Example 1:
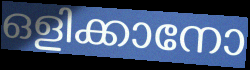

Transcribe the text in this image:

ഒളിക്കാനോ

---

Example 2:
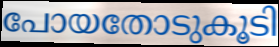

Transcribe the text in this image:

പോയതോടുകൂടി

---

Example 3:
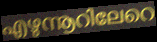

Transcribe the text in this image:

എഴുന്നൂറിലേറെ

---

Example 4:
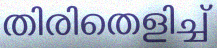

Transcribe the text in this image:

തിരിതെളിച്ച്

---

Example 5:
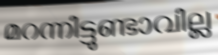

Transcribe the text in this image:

മറന്നിട്ടുണ്ടാവില്ല